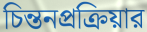
চিন্তনপ্রক্রিয়ার